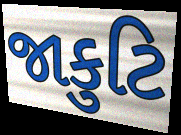
જાકુટિ